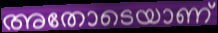
അതോടെയാണ്